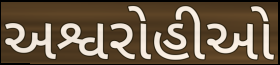
અશ્વરોહીઓ